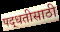
पद्धतीसाठी